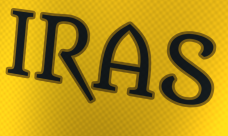
IRAS